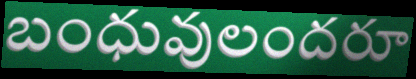
బంధువులందరూ